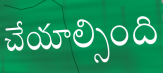
చేయాల్సింది